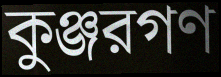
কুঞ্জরগণ